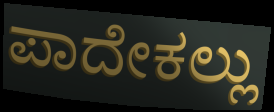
ಪಾದೇಕಲ್ಲು